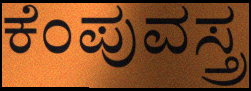
ಕೆಂಪುವಸ್ತ್ರ